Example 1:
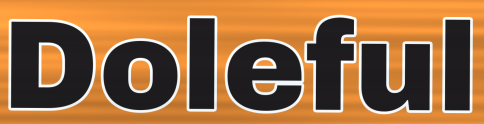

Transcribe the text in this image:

Doleful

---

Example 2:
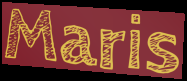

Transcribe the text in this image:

Maris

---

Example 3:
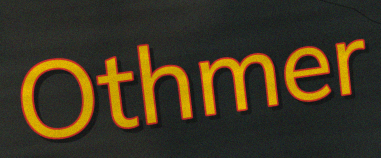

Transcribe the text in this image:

Othmer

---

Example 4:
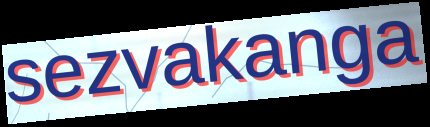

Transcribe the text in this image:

sezvakanga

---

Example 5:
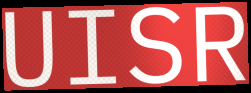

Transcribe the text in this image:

UISR